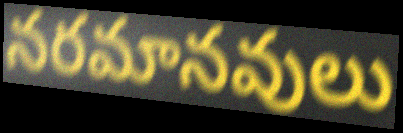
నరమానవులు